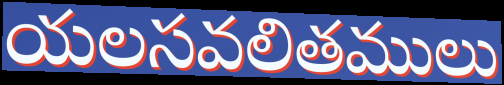
యలసవలితములు